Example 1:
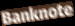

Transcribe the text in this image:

Banknote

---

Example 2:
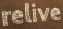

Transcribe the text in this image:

relive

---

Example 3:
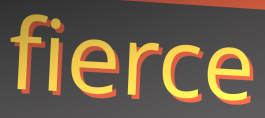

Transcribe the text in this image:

fierce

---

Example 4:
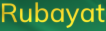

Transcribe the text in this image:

Rubayat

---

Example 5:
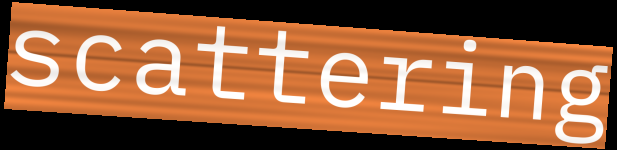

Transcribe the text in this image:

scattering